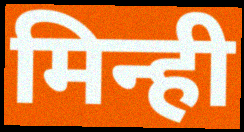
मिन्ही